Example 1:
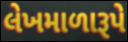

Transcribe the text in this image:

લેખમાળારૂપે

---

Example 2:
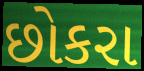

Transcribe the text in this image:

છોકરા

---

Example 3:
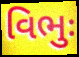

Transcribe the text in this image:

વિભુઃ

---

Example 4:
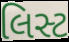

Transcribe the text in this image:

લિસ્ટ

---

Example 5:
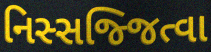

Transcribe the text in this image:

નિસ્સજ્જિત્વા